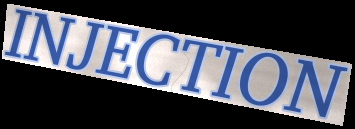
INJECTION